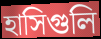
হাসিগুলি